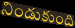
నిండుకుంది